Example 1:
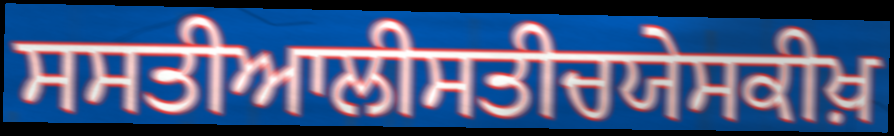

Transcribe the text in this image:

ਸਸਤੀਆਲੀਸਤੀਚਯੇਸਕੀਖ਼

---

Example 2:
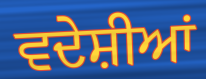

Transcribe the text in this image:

ਵਦੇਸ਼ੀਆਂ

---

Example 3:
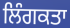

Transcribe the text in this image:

ਲਿੰਗਕਤਾ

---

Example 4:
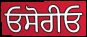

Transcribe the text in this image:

ਓਸੋਰੀਓ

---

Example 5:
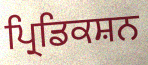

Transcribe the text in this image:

ਪ੍ਰਿਡਿਕਸ਼ਨ